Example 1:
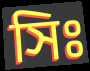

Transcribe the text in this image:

সিঃ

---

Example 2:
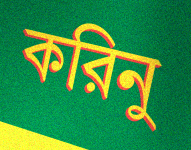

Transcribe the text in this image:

করিনু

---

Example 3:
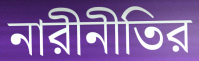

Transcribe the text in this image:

নারীনীতির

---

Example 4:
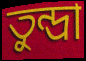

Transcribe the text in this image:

তুন্দ্রা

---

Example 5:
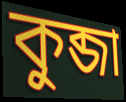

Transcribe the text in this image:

কুব্জা